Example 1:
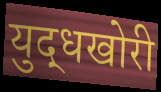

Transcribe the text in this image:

युद्धखोरी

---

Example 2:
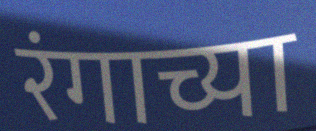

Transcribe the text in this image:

रंगाच्या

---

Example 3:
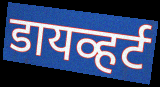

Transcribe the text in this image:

डायव्हर्ट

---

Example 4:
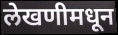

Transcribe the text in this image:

लेखणीमधून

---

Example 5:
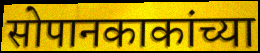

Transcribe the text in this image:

सोपानकाकांच्या